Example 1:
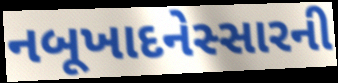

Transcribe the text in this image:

નબૂખાદનેસ્સારની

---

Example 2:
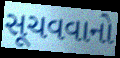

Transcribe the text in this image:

સૂચવવાનો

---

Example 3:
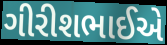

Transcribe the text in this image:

ગીરીશભાઈએ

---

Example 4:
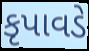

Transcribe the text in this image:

કૃપાવડે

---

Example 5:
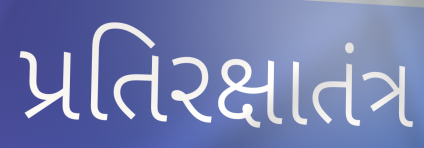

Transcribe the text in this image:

પ્રતિરક્ષાતંત્ર